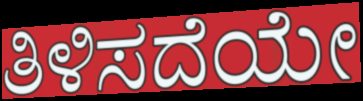
ತಿಳಿಸದೆಯೇ